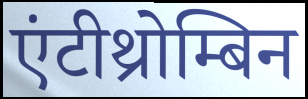
एंटीथ्रोम्बिन